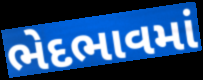
ભેદભાવમાં